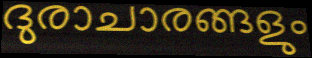
ദുരാചാരങ്ങളും